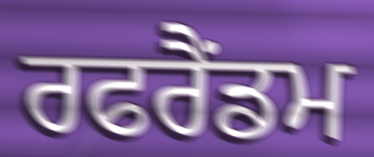
ਰਫਰੈਂਡਮ